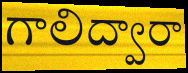
గాలిద్వారా